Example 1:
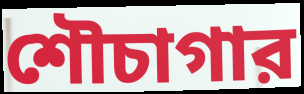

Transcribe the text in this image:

শৌচাগার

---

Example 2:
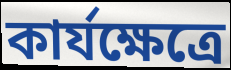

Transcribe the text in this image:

কার্যক্ষেত্রে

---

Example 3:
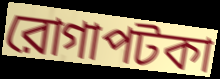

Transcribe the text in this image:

রোগাপটকা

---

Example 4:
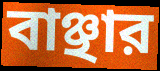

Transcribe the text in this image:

বাঞ্ছার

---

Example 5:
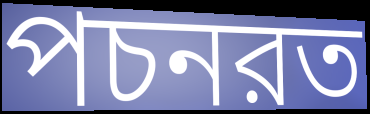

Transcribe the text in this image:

পচনরত